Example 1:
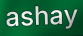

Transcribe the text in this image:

ashay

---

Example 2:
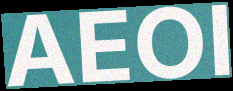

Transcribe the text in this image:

AEOI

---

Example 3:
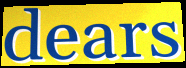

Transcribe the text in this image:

dears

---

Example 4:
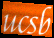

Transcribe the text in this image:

ucsb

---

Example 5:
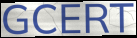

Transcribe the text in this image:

GCERT